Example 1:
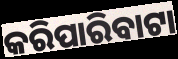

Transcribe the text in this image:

କରିପାରିବାଟା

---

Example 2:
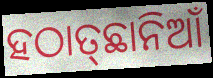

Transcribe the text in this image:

ହଠାତ୍‌ଛାନିଆଁ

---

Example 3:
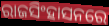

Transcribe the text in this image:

ରାଜସିଂହାସନରେ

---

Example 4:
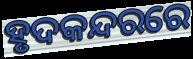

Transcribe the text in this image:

ହୃଦକନ୍ଦରରେ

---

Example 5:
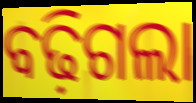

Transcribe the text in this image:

ବଢ଼ିଗଲା